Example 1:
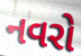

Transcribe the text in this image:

નવરો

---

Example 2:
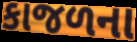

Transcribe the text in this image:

કાજળના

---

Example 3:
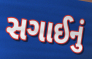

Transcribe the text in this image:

સગાઈનું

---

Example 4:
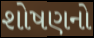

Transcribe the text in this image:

શોષણનો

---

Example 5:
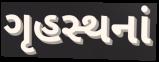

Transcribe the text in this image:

ગૃહસ્થનાં